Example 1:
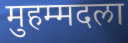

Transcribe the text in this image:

मुहम्मदला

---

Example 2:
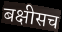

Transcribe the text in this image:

बक्षीसच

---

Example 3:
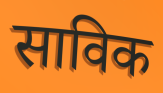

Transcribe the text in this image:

साविक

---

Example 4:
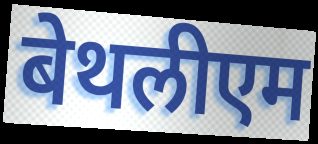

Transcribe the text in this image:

बेथलीएम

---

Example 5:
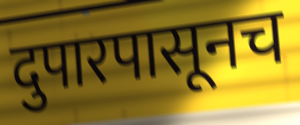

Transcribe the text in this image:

दुपारपासूनच